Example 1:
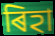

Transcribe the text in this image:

ৰিহা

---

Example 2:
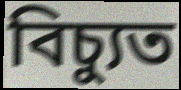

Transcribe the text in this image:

বিচ্যুত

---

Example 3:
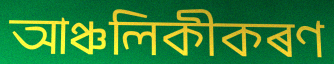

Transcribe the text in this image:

আঞ্চলিকীকৰণ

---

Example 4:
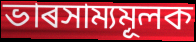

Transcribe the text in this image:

ভাৰসাম্যমূলক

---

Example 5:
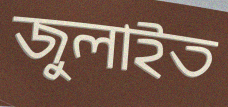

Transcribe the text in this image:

জুলাইত